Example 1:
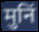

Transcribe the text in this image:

मुनिं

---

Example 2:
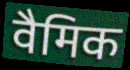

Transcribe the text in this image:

वैमिक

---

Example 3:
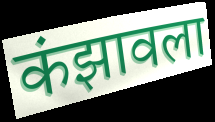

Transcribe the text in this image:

कंझावला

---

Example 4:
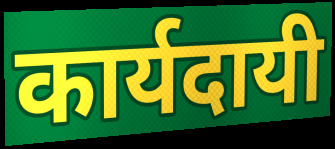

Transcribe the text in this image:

कार्यदायी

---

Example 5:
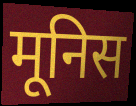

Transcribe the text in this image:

मूनिस